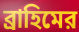
ব্রাহিমের